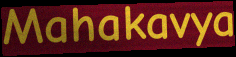
Mahakavya